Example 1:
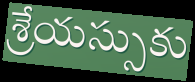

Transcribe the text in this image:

శ్రేయస్సుకు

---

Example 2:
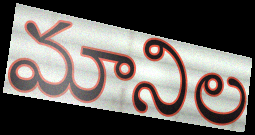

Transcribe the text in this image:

మానిల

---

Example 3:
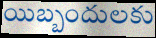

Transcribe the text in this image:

యిబ్బందులకు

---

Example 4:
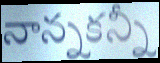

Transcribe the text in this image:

నాన్నకన్నీ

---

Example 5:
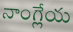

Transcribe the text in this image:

నాంగ్లేయ